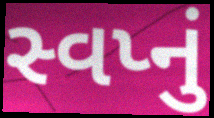
સ્વપ્નું